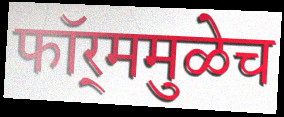
फॉर्ममुळेच